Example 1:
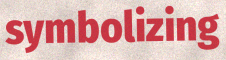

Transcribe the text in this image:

symbolizing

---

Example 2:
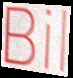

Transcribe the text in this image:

Bil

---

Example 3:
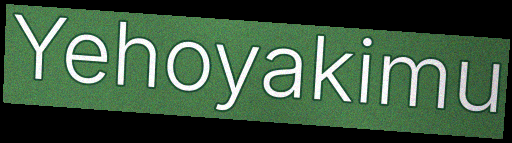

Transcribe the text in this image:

Yehoyakimu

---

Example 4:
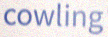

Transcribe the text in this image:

cowling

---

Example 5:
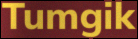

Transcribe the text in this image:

Tumgik